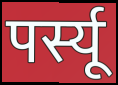
पर्स्यू